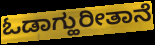
ಓಡಾಗ್ಹುರೀತಾನೆ